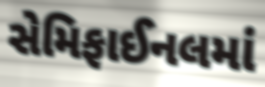
સેમિફાઈનલમાં